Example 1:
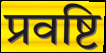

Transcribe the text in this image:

प्रवष्टि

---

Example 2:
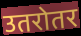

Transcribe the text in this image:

उतरोतर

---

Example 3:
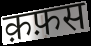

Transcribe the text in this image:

क़फ़स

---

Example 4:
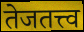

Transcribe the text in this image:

तेजतत्त्व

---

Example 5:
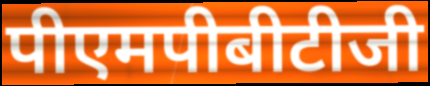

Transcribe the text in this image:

पीएमपीबीटीजी